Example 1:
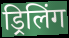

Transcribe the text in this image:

ड्रिलिंग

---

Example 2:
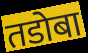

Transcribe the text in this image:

तडोबा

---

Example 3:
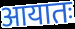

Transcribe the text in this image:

आयातः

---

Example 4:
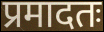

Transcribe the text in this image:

प्रमादतः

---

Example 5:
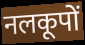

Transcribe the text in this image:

नलकूपों